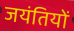
जयंतियों